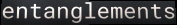
entanglements